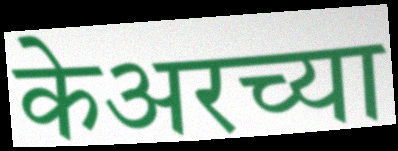
केअरच्या